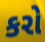
કરો